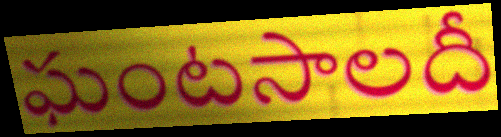
ఘంటసాలదీ